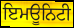
ਇਮਊਨਿਟੀ